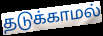
தடுக்காமல்